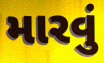
મારવું